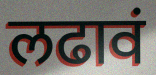
लढावं